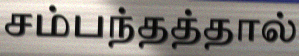
சம்பந்தத்தால்